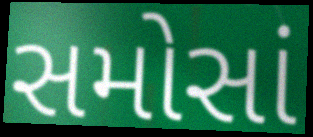
સમોસાં